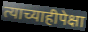
त्याच्याहीपेक्षा